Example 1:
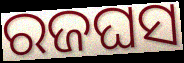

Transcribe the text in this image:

ରଜଘସ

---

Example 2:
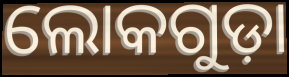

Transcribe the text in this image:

ଲୋକଗୁଡ଼ା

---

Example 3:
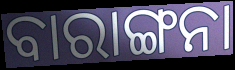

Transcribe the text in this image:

ବାରାଙ୍ଗନା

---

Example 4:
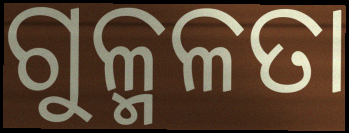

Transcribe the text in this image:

ଗୁଳ୍ମଳତା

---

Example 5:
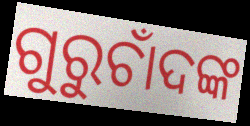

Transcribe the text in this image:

ଗୁରୁଚାଁଦଙ୍କ